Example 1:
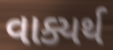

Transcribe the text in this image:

વાક્યર્થ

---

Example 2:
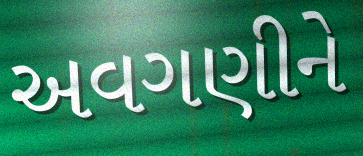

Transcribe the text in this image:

અવગણીને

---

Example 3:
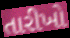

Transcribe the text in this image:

તારીખો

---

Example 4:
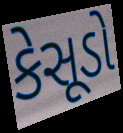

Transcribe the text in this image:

કેસૂડો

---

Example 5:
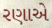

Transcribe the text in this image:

રણાએ